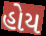
હોય